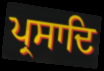
ਪ੍ਰਸਾਦਿ